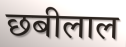
छबीलाल